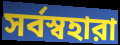
সর্বস্বহারা